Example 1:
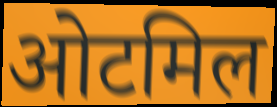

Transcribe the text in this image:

ओटमिल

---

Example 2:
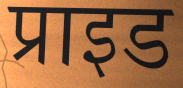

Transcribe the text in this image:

प्राइड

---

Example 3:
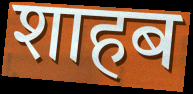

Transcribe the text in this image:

शाहब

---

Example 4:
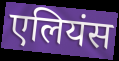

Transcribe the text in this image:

एलियंस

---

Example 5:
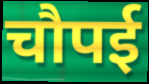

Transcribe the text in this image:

चौपई